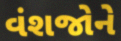
વંશજોને